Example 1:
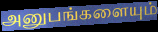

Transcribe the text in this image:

அனுபங்களையும்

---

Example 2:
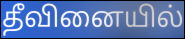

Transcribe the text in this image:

தீவினையில்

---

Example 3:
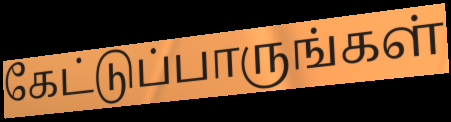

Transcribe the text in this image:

கேட்டுப்பாருங்கள்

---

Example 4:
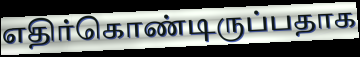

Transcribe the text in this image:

எதிர்கொண்டிருப்பதாக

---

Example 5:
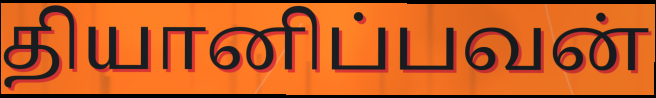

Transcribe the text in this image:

தியானிப்பவன்